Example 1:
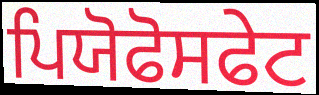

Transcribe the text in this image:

ਪਿਯੋਫੋਸਫੇਟ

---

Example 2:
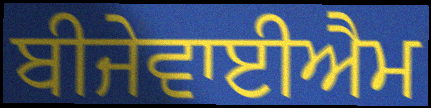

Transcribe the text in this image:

ਬੀਜੇਵਾਈਐਮ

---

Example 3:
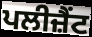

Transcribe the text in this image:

ਪਲੀਜ਼ੈਂਟ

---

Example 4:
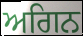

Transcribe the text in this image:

ਅਗਿਨ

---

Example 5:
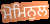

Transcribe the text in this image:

ਮੋਮਿਨੁਲ